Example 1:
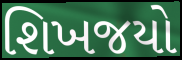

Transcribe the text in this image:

શિખજયો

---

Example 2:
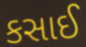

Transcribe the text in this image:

કસાઈ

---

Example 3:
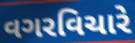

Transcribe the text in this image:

વગરવિચારે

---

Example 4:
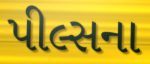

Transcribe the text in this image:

પીલ્સના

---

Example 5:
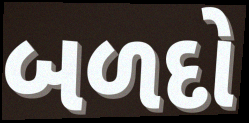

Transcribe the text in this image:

બળદો